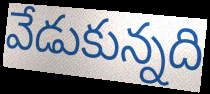
వేడుకున్నది